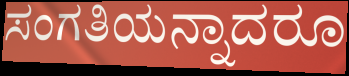
ಸಂಗತಿಯನ್ನಾದರೂ